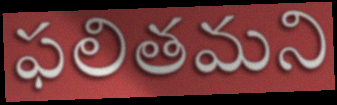
ఫలితమని